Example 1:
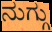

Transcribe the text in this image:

ನುಗ್ಗು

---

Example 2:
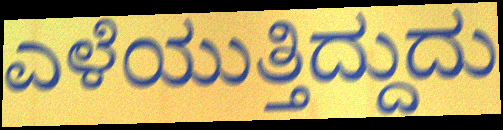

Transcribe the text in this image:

ಎಳೆಯುತ್ತಿದ್ದುದು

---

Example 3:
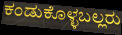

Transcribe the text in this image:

ಕಂಡುಕೊಳ್ಳಬಲ್ಲರು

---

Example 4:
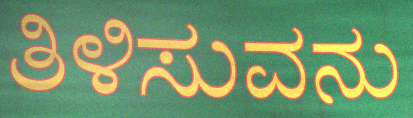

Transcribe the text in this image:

ತಿಳಿಸುವನು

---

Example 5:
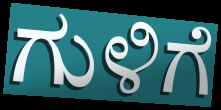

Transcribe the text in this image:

ಗುಳಿಗೆ